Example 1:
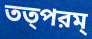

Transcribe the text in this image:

তত্পরম্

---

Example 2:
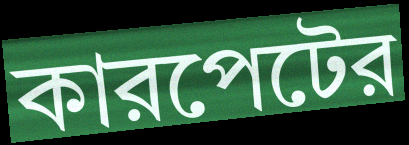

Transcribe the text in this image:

কারপেটের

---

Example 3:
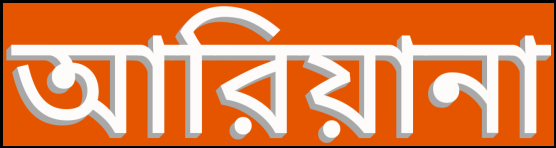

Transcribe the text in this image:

আরিয়ানা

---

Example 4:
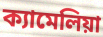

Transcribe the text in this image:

ক্যামেলিয়া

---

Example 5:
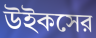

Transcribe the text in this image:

উইকসের